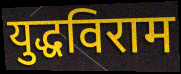
युद्धविराम